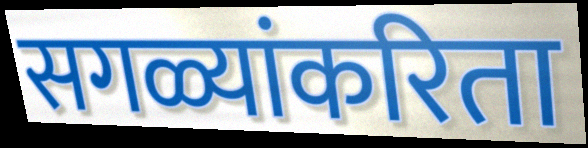
सगळ्यांकरिता